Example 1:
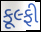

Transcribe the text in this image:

કૂલ્ફી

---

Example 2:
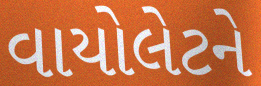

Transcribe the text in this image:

વાયોલેટને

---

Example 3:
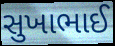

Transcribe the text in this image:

સુખાભાઈ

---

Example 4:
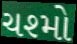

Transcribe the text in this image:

ચશ્મો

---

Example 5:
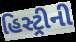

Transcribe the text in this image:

હિસ્ટ્રીની